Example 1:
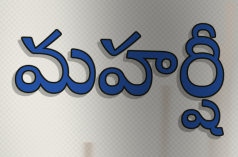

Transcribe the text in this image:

మహర్షీ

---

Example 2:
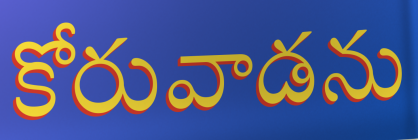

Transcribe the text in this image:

కోరువాడను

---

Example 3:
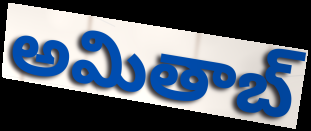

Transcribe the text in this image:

అమితాబ్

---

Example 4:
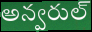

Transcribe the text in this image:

అన్వరుల్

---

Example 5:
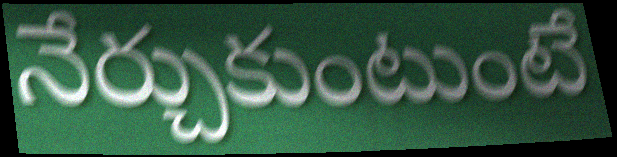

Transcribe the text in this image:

నేర్చుకుంటుంటే